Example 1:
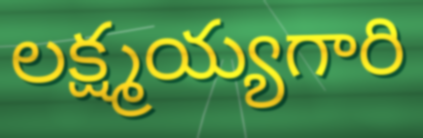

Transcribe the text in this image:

లక్ష్మయ్యగారి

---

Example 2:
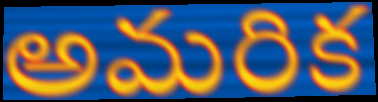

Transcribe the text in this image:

అమరిక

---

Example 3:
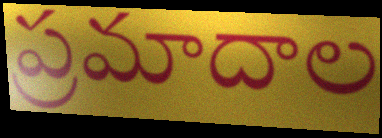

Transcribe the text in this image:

ప్రమాదాల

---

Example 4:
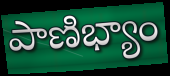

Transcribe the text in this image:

పాణిభ్యాం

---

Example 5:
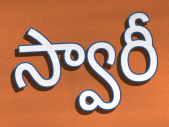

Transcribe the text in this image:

స్వారీ